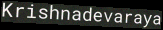
Krishnadevaraya